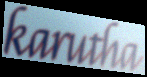
karutha